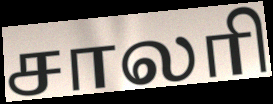
சாலரி